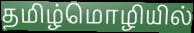
தமிழ்மொழியில்